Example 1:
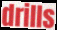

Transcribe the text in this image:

drills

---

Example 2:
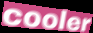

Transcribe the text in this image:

cooler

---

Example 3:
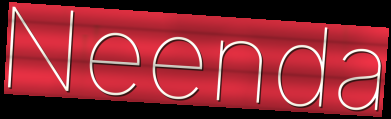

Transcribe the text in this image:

Neenda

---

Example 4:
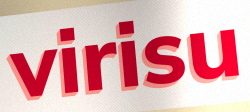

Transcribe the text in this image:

virisu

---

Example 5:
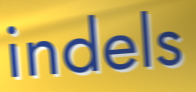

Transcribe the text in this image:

indels